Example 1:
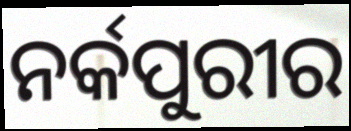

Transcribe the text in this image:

ନର୍କପୁରୀର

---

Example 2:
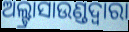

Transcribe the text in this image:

ଅଲ୍ଟ୍ରାସାଉଣ୍ଡଦ୍ୱାରା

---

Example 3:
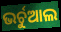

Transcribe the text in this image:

ଭର୍ଚୁଆଲ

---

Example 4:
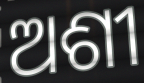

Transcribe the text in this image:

ଅଶୀ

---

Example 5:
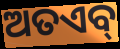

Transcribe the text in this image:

ଅତଏବ୍